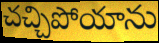
చచ్చిపోయాను